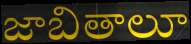
జాబితాలూ